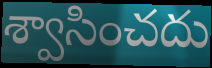
శ్వాసించదు